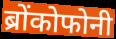
ब्रोंकोफोनी